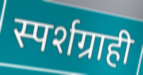
स्पर्शग्राही